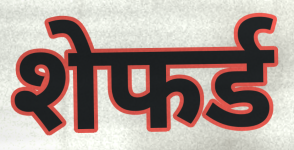
शेफर्ड